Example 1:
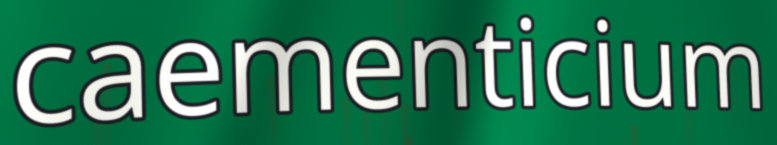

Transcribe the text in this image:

caementicium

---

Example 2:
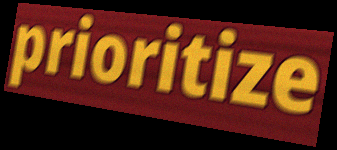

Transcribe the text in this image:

prioritize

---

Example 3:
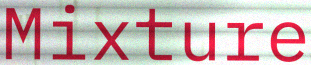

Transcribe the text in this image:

Mixture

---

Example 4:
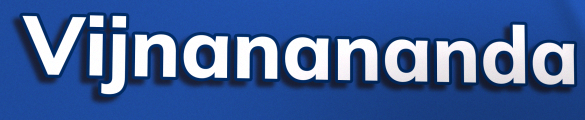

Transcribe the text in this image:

Vijnanananda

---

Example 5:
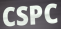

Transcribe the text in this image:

CSPC